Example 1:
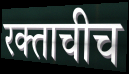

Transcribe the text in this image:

रक्ताचीच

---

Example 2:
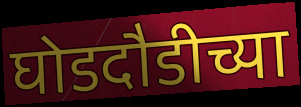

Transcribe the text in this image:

घोडदौडीच्या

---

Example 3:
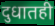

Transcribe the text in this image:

दुधातही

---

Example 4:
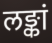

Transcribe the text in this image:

लङ्कां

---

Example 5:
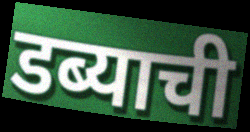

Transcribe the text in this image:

डब्याची